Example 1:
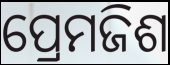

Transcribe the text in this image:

ପ୍ରେମଜିଶ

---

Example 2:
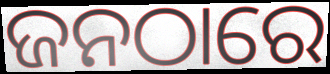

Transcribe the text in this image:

ଜନଠାରେ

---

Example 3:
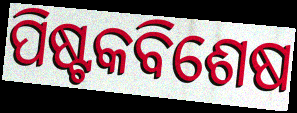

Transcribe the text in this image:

ପିଷ୍ଟକବିଶେଷ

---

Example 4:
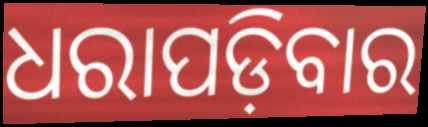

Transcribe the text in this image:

ଧରାପଡ଼ିବାର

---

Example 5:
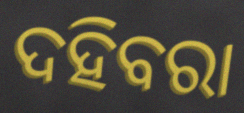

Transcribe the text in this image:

ଦହିବରା